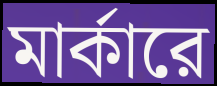
মার্কারে